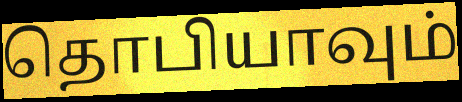
தொபியாவும்